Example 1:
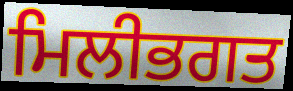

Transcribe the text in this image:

ਮਿਲੀਭਗਤ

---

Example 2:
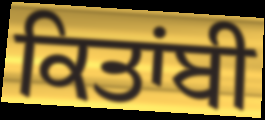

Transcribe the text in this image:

ਕਿਤਾਂਬੀ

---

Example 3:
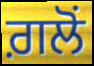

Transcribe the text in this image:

ਗ਼ਲੋਂ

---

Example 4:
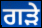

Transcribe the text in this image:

ਗੜੇ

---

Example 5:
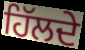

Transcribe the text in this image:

ਹਿੱਲਦੇ